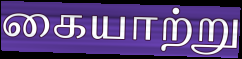
கையாற்று